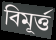
বিমূৰ্ত্ত